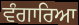
ਵੰਗਾਰਿਆ